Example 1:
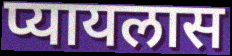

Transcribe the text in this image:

प्यायलास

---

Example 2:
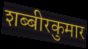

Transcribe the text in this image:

शब्बीरकुमार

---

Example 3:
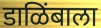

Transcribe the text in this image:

डाळिंबाला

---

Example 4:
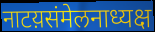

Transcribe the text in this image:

नाटय़संमेलनाध्यक्ष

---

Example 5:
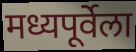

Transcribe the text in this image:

मध्यपूर्वेला